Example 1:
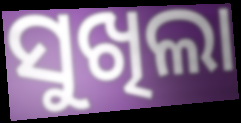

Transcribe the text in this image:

ସୁଖିଲା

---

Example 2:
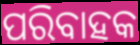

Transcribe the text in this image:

ପରିବାହକ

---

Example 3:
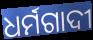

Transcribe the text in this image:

ଧର୍ମଗାଦୀ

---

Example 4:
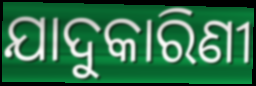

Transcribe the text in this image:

ଯାଦୁକାରିଣୀ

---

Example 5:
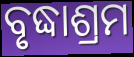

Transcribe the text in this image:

ବୃଦ୍ଧାଶ୍ରମ